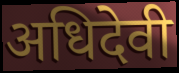
अधिदेवी